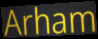
Arham